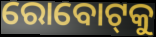
ରୋବୋଟ୍‌କୁ